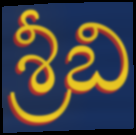
శ్రీబి